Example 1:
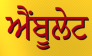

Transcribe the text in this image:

ਐਂਬੂਲੇਟ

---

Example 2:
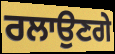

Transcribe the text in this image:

ਰਲਾਉਣਗੇ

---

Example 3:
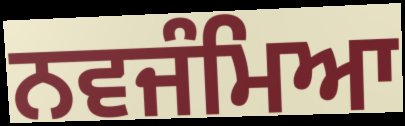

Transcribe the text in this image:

ਨਵਜੰਮਿਆ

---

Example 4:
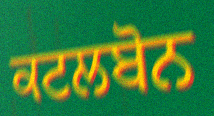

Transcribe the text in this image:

ਕਟਲਬੋਨ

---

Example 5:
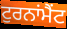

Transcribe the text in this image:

ਟੁਰਨਾਂਮੈਂਟ